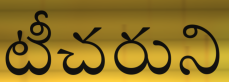
టీచరుని